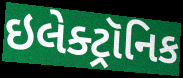
ઇલેક્ટ્રૉનિક